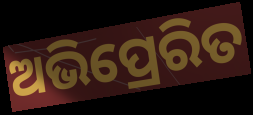
ଅଭିପ୍ରେରିତ